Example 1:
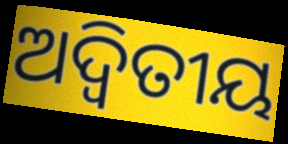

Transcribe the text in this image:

ଅଦ୍ୱିତୀୟ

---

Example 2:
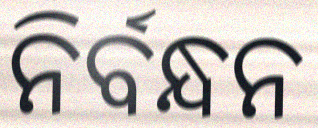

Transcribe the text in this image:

ନିର୍ବନ୍ଧନ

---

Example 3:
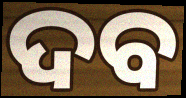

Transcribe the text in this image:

ଦବ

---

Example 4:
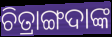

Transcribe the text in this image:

ଚିତ୍ରାଙ୍ଗଦାଙ୍କ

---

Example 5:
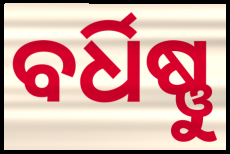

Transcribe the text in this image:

ବର୍ଧିଷ୍ଣୁ